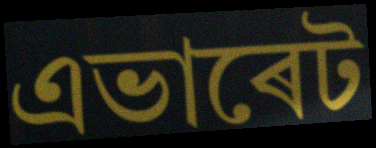
এভাৰেট